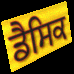
ਡੈਸਿਕ